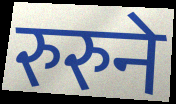
रुरुने